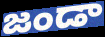
జండా